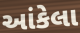
આંકેલા